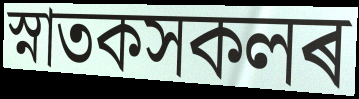
স্নাতকসকলৰ